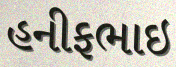
હનીફભાઇ